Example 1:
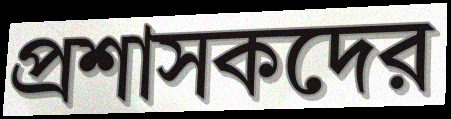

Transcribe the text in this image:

প্রশাসকদের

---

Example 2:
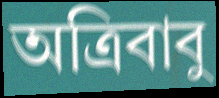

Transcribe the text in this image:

অত্রিবাবু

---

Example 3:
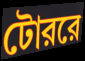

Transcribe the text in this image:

টোররে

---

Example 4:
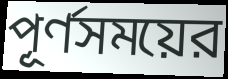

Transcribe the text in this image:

পূর্ণসময়ের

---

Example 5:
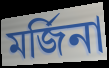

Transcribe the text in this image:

মর্জিনা